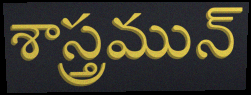
శాస్త్రమున్